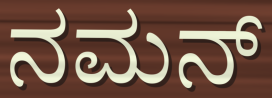
ನಮನ್